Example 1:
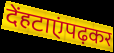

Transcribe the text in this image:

देंहटाएंपढ़कर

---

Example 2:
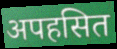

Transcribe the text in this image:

अपहसित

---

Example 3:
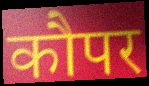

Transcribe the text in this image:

कौपर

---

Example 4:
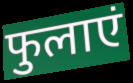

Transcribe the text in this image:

फुलाएं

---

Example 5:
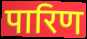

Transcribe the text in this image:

पारिण